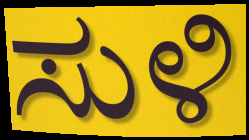
ಸುಳಿ